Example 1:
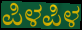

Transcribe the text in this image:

ಪಿಳಪಿಳ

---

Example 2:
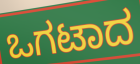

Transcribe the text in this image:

ಒಗಟಾದ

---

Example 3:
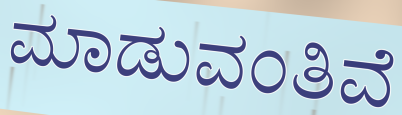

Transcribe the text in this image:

ಮಾಡುವಂತಿವೆ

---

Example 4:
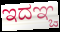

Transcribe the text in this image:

ಇದಞ್ಚ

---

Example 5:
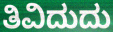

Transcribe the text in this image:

ತಿವಿದುದು